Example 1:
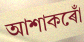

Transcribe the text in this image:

আশাকৰোঁ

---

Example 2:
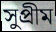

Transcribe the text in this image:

সুপ্ৰীম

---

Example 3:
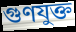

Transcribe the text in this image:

গুণযুক্ত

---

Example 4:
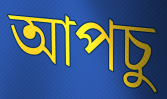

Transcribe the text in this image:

আপচু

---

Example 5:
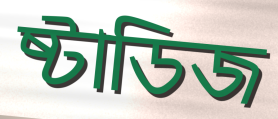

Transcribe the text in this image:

ষ্টাডিজ